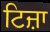
ਟਿਜ਼ਾ